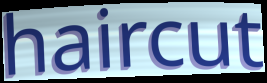
haircut